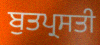
ਬੁਤਪ੍ਰਸਤੀ